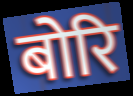
बोरि